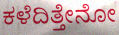
ಕಳೆದಿತ್ತೇನೋ